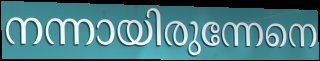
നന്നായിരുന്നേനെ